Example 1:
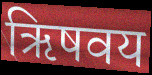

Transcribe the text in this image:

ऋिषवय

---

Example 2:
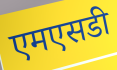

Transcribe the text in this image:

एमएसडी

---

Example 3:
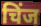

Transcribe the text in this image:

चिंज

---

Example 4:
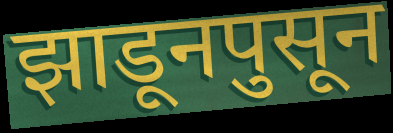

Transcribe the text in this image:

झाडूनपुसून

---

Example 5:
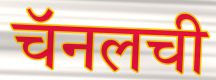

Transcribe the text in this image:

चॅनलची